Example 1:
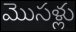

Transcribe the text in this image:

మొసళ్లు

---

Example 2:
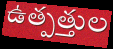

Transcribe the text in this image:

ఉత్పత్తుల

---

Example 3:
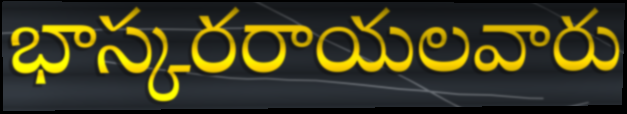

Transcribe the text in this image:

భాస్కరరాయలవారు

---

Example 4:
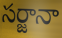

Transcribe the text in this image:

సర్జానా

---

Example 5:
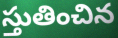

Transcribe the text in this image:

స్తుతించిన